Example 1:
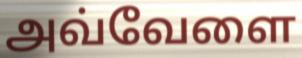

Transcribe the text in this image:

அவ்வேளை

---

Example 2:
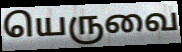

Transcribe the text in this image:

யெருவை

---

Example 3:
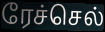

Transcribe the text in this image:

ரேச்செல்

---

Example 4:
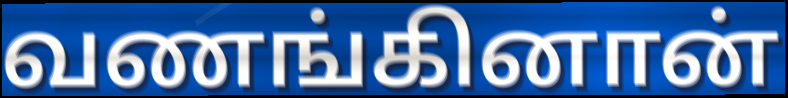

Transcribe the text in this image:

வணங்கினான்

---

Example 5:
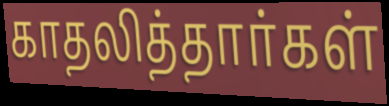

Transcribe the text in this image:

காதலித்தார்கள்